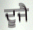
ਦੂਜੈ